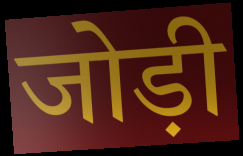
जोड़ी